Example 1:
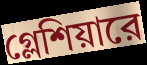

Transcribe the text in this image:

গ্লেশিয়ারে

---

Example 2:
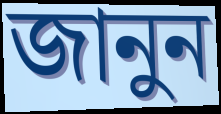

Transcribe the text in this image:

জানুন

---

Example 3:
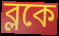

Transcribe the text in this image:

ব্লকে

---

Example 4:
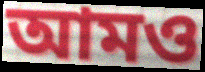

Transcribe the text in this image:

আমও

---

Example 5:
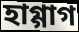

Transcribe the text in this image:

হাগ্গাগ